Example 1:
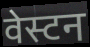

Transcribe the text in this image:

वेस्टन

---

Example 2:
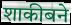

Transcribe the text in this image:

शाकीबने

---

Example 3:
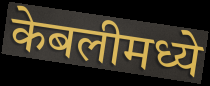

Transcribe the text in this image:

केबलीमध्ये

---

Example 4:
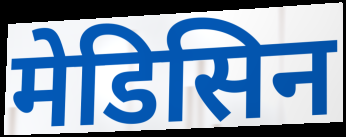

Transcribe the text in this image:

मेडिसिन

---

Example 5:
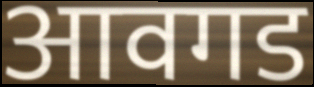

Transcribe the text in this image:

आवगड